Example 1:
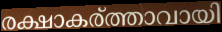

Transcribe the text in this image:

രക്ഷാകര്ത്താവായി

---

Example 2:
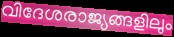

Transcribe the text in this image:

വിദേശരാജ്യങ്ങളിലും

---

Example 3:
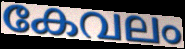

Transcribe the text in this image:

കേവലം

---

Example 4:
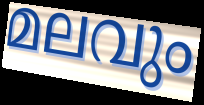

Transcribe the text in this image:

മലവും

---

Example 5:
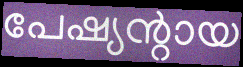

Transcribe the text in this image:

പേഷ്യന്റായ